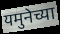
यमुनेच्या